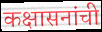
कक्षासनांची